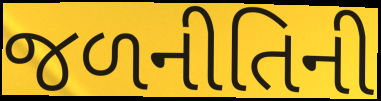
જળનીતિની